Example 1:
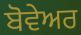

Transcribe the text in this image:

ਬੋਵੇਅਰ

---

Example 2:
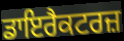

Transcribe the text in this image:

ਡਾਇਰੈਕਟਰਜ਼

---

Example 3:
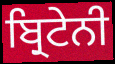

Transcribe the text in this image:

ਬ੍ਰਿਟੇਨੀ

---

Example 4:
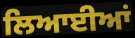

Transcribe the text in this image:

ਲਿਆਈਆਂ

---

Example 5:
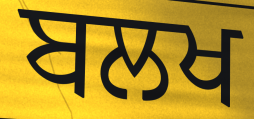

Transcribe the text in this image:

ਬਲਖ